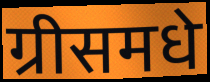
ग्रीसमधे